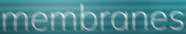
membranes